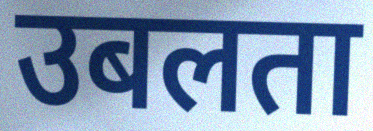
उबलता